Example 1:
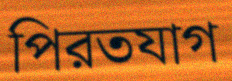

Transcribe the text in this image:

পিরতযাগ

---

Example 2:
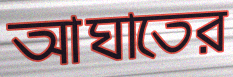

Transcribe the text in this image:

আঘাতের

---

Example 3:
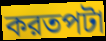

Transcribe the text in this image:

করতপটা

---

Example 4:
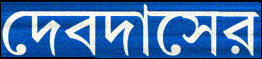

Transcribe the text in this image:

দেবদাসের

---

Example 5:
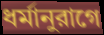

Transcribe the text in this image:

ধর্মানুরাগে